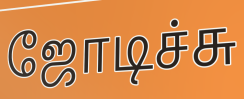
ஜோடிச்சு